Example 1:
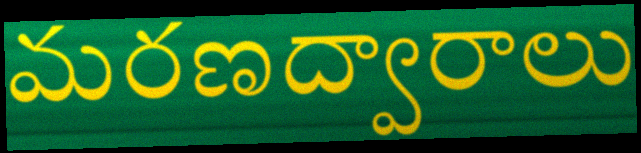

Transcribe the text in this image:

మరణద్వారాలు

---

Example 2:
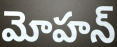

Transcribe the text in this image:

మోహన్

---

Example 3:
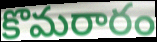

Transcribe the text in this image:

కొమరారం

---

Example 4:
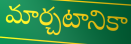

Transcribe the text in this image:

మార్చటానికా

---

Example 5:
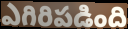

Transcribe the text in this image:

ఎగిరిపడింది